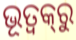
ଭୂତ୍ଵକ୍‌ରୁ